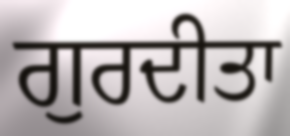
ਗੁਰਦੀਤਾ